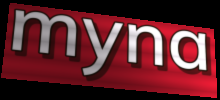
myna